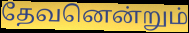
தேவனென்றும்